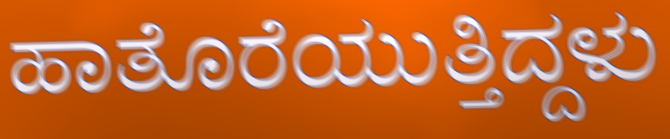
ಹಾತೊರೆಯುತ್ತಿದ್ದಳು